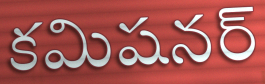
కమిషనర్